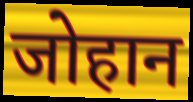
जोहान